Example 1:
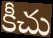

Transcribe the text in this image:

కీచు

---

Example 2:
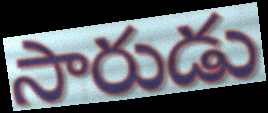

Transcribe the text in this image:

సారుడు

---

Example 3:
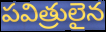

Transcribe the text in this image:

పవిత్రులైన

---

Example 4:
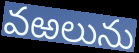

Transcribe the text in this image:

వఱలును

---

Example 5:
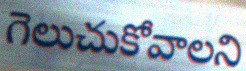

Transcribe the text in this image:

గెలుచుకోవాలని